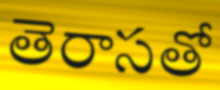
తెరాసతో